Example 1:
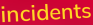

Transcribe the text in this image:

incidents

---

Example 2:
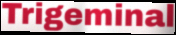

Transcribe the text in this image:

Trigeminal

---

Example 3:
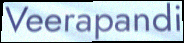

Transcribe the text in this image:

Veerapandi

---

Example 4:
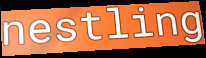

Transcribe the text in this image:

nestling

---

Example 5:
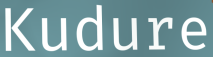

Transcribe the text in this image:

Kudure